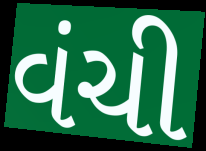
વંચી